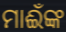
ମାଈଁଙ୍କ